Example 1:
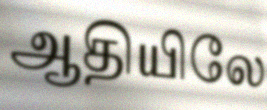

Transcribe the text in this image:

ஆதியிலே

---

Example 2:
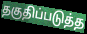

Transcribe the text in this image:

தகுதிப்படுத்த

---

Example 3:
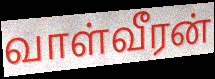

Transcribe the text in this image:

வாள்வீரன்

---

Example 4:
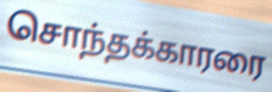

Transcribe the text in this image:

சொந்தக்காரரை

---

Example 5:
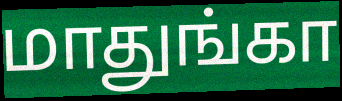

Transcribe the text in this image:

மாதுங்கா